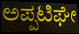
ಅಪ್ಪಟಿಘೇ